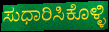
ಸುಧಾರಿಸಿಕೊಳ್ಳಿ